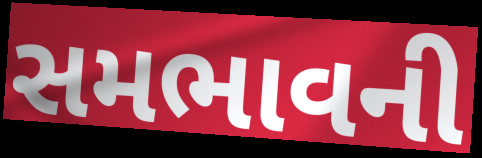
સમભાવની